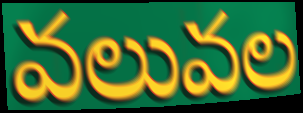
వలువల